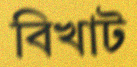
বিখাট